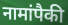
नामांपैकी